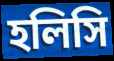
হলিসি